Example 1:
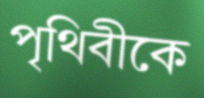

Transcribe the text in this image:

পৃথিবীকে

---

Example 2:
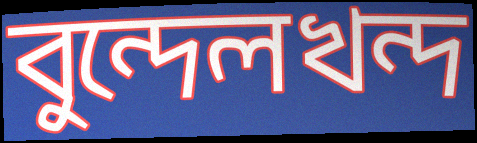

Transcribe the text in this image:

বুন্দেলখন্দ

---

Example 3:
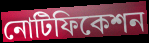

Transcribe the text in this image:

নোটিফিকেশন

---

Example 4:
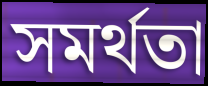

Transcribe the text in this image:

সমর্থতা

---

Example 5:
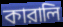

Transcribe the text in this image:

কারালি